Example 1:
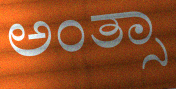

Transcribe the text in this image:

ಅಂತ್ಸಾ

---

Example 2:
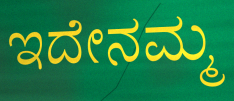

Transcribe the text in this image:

ಇದೇನಮ್ಮ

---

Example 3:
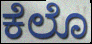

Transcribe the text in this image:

ಕೆಲೊ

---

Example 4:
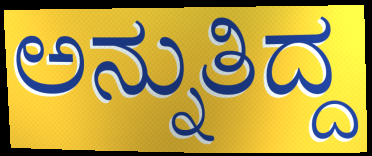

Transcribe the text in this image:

ಅನ್ನುತಿದ್ದ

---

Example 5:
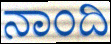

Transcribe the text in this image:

ನಾಂದಿ